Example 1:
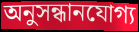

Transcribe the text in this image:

অনুসন্ধানযোগ্য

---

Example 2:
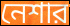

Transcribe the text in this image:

নেশার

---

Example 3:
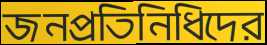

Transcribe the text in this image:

জনপ্রতিনিধিদের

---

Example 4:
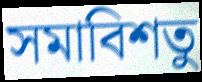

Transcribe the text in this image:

সমাবিশতু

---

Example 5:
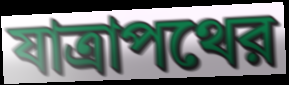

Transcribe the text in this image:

যাত্রাপথের